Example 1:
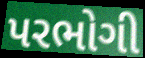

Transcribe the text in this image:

પરભોગી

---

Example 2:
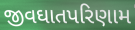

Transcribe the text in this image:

જીવઘાતપરિણામ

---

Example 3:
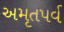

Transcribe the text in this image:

અમૃતપર્વ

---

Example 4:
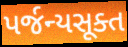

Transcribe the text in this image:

પર્જન્યસૂક્ત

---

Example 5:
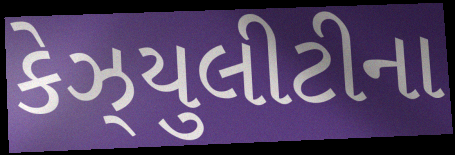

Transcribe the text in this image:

કેઝ્યુલીટીના